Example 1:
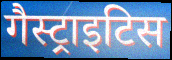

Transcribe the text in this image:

गैस्ट्राइटिस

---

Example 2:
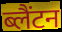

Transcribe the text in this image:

ब्लैंटन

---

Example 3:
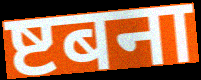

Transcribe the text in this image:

ष्टबना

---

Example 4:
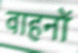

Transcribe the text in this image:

वाहनों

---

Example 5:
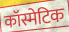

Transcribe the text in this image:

कॉस्मेटिक